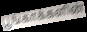
பூங்காக்களின்